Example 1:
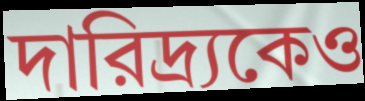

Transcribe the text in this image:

দারিদ্র্যকেও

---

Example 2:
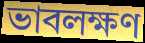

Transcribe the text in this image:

ভাবলক্ষণ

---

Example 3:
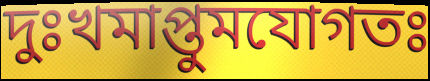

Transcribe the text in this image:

দুঃখমাপ্তুমযোগতঃ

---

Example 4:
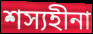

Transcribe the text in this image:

শস্যহীনা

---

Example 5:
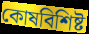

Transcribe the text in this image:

কোষবিশিষ্ট